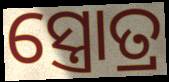
ସ୍ତ୍ରୋତ୍ର